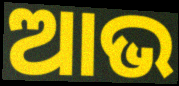
ଆଭ